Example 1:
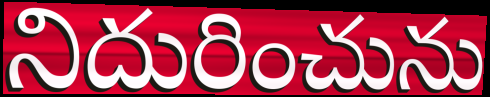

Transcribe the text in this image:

నిదురించును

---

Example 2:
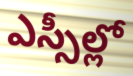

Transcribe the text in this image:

ఎస్సీల్లో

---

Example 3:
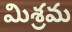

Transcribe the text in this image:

మిశ్రమ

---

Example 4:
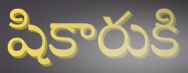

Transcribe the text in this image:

షికారుకి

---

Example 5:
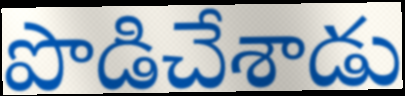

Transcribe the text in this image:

పొడిచేశాడు